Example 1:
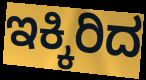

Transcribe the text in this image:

ಇಕ್ಕಿರಿದ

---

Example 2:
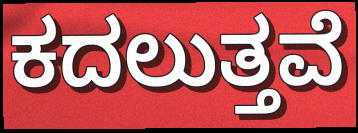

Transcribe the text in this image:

ಕದಲುತ್ತವೆ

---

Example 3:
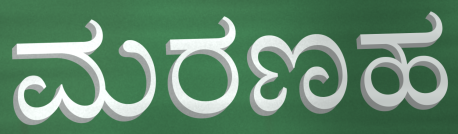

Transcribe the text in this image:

ಮರಣಹ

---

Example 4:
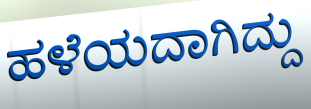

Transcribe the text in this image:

ಹಳೆಯದಾಗಿದ್ದು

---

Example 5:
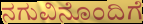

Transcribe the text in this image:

ನಗುವಿನೊಂದಿಗೆ